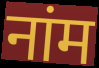
नांम